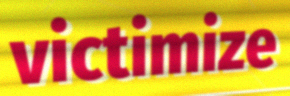
victimize